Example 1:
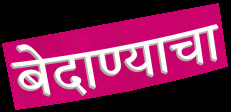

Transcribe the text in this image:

बेदाण्याचा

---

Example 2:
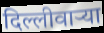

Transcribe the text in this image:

दिल्लीवाऱ्या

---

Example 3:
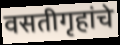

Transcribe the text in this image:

वसतीगृहांचे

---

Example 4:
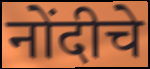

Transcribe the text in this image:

नोंदीचे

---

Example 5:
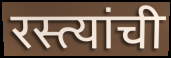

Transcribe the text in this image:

रस्त्यांची